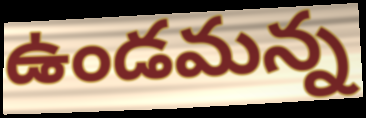
ఉండమన్న